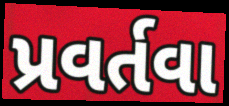
પ્રવર્તવા